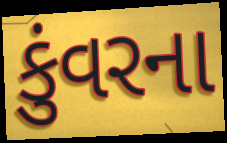
કુંવરના